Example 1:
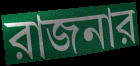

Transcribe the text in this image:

রাজনার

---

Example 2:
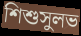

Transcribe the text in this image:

শিশুসুলভ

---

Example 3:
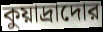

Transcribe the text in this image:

কুয়াদ্রাদোর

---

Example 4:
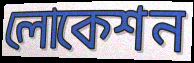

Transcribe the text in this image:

লোকেশন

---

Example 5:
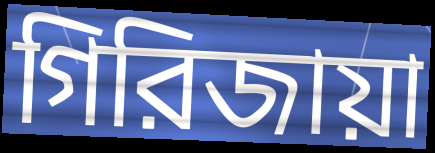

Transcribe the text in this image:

গিরিজায়া